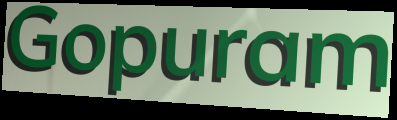
Gopuram